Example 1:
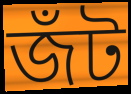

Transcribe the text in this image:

জঁট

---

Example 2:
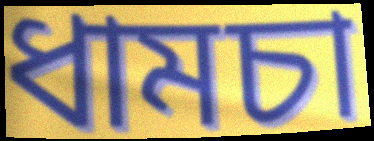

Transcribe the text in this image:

ধামচা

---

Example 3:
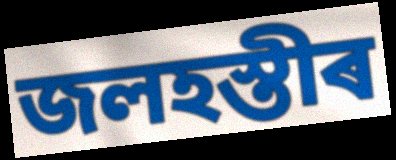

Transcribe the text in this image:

জলহস্তীৰ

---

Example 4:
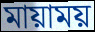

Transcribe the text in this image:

মায়াময়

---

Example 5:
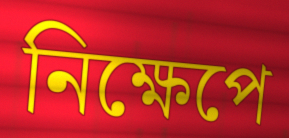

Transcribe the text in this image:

নিক্ষেপে